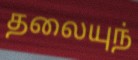
தலையுந்